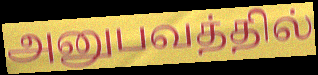
அனுபவத்தில்